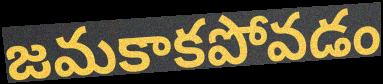
జమకాకపోవడం